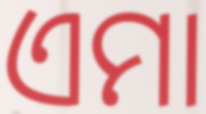
ଏମା